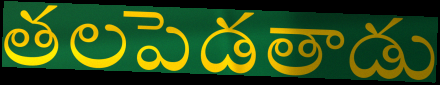
తలపెడతాడు